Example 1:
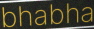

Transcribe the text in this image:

bhabha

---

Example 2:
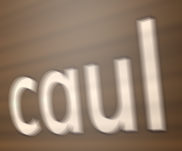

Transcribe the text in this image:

caul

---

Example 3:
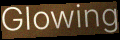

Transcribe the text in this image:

Glowing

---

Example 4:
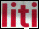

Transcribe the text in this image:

liti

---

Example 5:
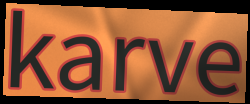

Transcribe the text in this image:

karve